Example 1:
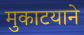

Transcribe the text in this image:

मुकाटयाने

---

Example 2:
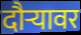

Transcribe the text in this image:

दौऱ्यावर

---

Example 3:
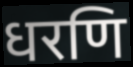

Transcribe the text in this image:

धरणि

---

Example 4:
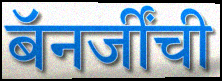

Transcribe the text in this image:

बॅनर्जींची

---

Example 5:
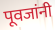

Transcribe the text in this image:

पूवजांनी